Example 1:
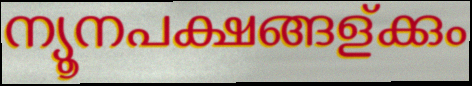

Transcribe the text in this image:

ന്യൂനപക്ഷങ്ങള്ക്കും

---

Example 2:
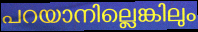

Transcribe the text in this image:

പറയാനില്ലെങ്കിലും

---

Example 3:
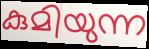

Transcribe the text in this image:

കുമിയുന്ന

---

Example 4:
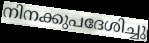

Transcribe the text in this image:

നിനക്കുപദേശിച്ചു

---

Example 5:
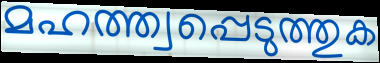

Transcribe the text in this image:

മഹത്ത്വപ്പെടുത്തുക